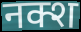
नक्श